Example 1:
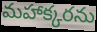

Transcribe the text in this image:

మహాక్కరను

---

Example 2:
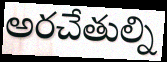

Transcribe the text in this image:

అరచేతుల్ని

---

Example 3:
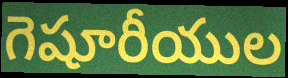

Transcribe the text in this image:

గెషూరీయుల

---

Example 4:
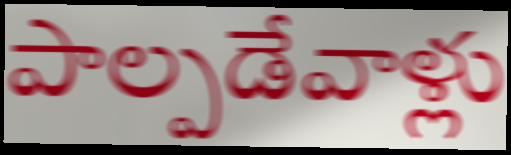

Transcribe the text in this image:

పాల్పడేవాళ్లు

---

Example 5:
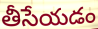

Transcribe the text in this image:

తీసేయడం